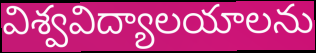
విశ్వవిద్యాలయాలను